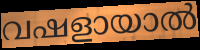
വഷളായാൽ